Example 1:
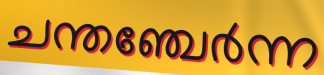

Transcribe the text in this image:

ചന്തഞ്ചേർന്ന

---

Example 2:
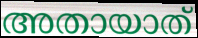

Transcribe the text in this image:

അതായാത്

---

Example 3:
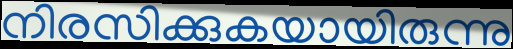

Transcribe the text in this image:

നിരസിക്കുകയായിരുന്നു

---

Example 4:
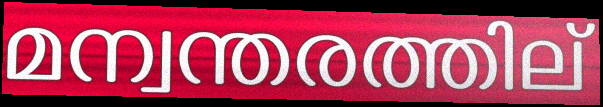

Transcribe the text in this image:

മന്വന്തരത്തില്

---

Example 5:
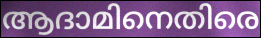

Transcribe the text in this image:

ആദാമിനെതിരെ